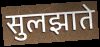
सुलझाते